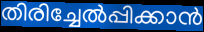
തിരിച്ചേൽപ്പിക്കാൻ